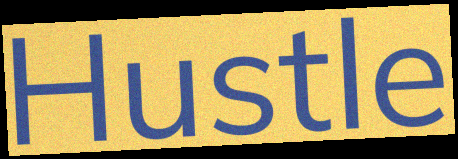
Hustle